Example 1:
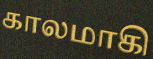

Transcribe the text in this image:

காலமாகி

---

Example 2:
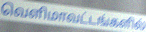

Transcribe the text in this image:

வெளிமாவட்டங்களில்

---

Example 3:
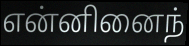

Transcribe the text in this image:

என்னினைந்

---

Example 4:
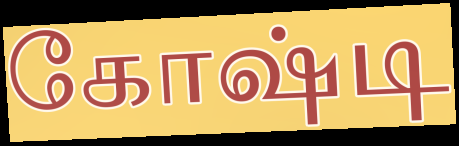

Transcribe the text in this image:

கோஷ்டி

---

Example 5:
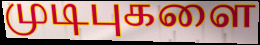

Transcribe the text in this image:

முடிபுகளை